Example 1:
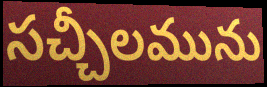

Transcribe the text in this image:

సచ్చీలమును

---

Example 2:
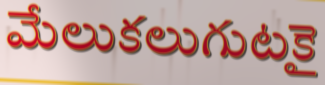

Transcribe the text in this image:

మేలుకలుగుటకై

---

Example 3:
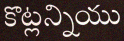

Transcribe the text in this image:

కొట్లన్నియు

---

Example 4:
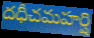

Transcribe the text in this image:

దధీచమహర్షి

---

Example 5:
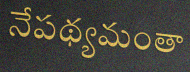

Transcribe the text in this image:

నేపథ్యమంతా